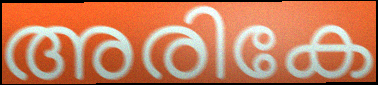
അരികേ